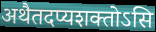
अथैतदप्यशक्तोऽसि